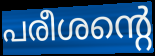
പരീശന്റെ